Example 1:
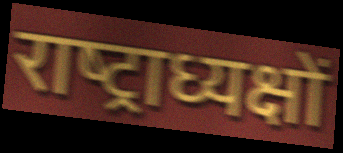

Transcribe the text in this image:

राष्ट्राध्यक्षों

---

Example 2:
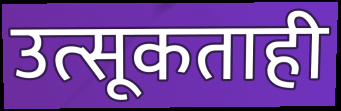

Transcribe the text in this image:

उत्सूकताही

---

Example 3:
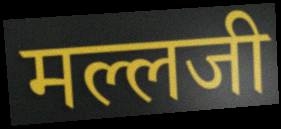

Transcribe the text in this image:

मल्लजी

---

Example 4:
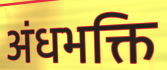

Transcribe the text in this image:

अंधभक्ति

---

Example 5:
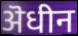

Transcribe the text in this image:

ऄधीन